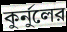
কুর্নুলের